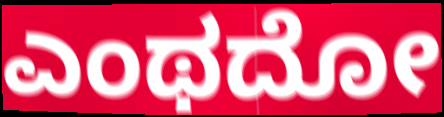
ಎಂಥದೋ